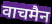
वाचमैन